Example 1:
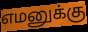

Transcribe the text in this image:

எமனுக்கு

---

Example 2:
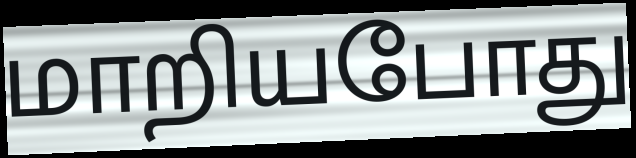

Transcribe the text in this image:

மாறியபோது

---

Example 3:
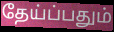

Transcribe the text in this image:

தேய்ப்பதும்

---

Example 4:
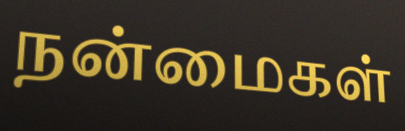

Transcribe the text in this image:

நன்மைகள்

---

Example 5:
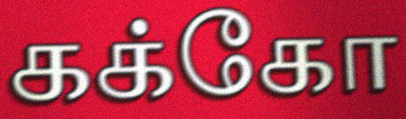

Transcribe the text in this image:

கக்கோ